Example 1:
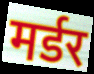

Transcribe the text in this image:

मर्डर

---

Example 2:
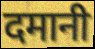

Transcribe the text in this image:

दमानी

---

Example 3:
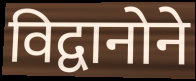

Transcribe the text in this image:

विद्वानोने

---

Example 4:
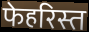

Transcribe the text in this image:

फेहरिस्‍त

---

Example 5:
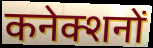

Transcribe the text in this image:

कनेक्शनों